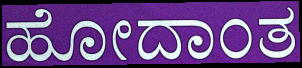
ಹೋದಾಂತ